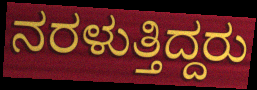
ನರಳುತ್ತಿದ್ದರು